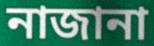
নাজানা